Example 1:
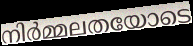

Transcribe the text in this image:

നിർമ്മലതയോടെ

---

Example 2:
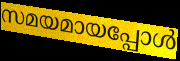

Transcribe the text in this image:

സമയമായപ്പോൾ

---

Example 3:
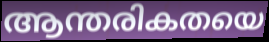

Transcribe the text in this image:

ആന്തരികതയെ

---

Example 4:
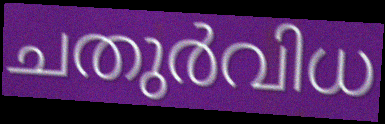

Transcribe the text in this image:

ചതുർവിധ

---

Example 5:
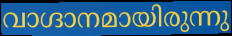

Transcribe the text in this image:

വാഗ്ദാനമായിരുന്നു